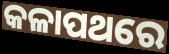
କଳାପଥରେ